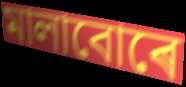
মালাবোৰে